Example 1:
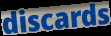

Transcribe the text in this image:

discards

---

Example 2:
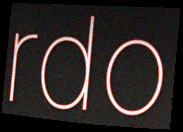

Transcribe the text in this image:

rdo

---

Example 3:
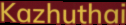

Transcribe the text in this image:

Kazhuthai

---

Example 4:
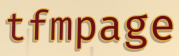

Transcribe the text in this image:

tfmpage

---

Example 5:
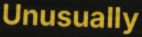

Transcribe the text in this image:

Unusually